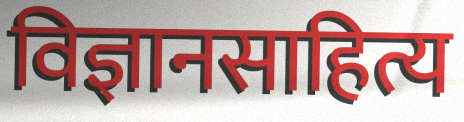
विज्ञानसाहित्य